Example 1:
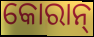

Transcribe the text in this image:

କୋରାନ୍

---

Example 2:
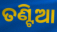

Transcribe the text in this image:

ତଣ୍ଟିଆ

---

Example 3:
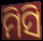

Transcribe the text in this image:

ମିସି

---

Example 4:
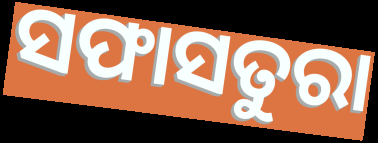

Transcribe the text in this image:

ସଫାସତୁରା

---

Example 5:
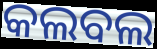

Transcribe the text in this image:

କଲବଲ